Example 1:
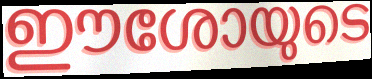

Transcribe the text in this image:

ഈശോയുടെ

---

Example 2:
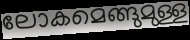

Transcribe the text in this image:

ലോകമെങ്ങുമുള്ള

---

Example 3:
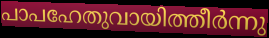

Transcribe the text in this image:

പാപഹേതുവായിത്തീർന്നു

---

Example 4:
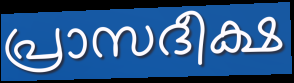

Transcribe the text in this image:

പ്രാസദീക്ഷ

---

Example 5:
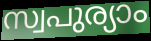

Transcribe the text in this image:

സ്വപുര്യാം